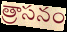
త్రాసనం